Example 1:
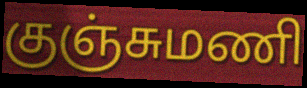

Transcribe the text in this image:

குஞ்சுமணி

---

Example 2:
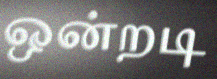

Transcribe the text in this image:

ஒன்றடி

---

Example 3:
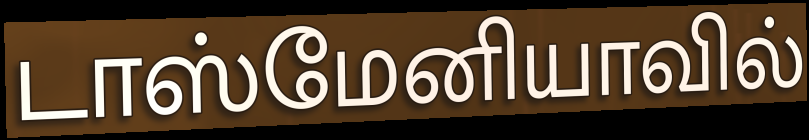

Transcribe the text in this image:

டாஸ்மேனியாவில்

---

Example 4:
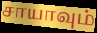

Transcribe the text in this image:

சாயாவும்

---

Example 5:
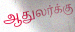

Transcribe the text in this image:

ஆதுலர்க்கு